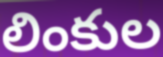
లింకుల